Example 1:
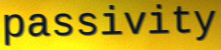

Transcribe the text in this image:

passivity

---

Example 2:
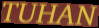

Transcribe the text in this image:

TUHAN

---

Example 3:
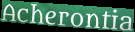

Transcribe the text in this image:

Acherontia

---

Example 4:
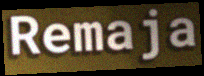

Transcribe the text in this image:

Remaja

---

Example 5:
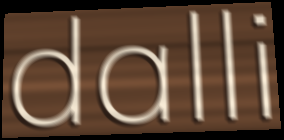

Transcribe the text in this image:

dalli